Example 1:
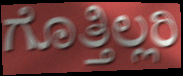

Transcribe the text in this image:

ಗೊತ್ತಿಲ್ಲರಿ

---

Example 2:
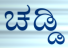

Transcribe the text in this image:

ಚಡ್ಡಿ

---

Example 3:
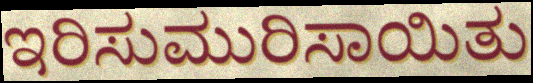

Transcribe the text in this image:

ಇರಿಸುಮುರಿಸಾಯಿತು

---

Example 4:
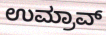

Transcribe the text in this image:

ಉಮ್ರಾವ್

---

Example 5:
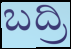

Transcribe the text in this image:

ಬದ್ರಿ